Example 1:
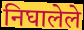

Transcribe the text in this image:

निघालेले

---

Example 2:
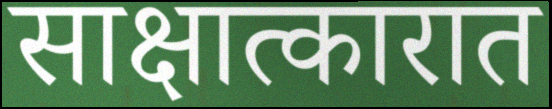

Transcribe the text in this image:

साक्षात्कारात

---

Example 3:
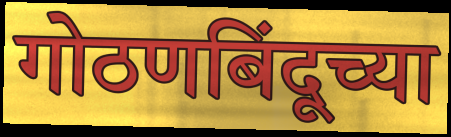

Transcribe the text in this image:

गोठणबिंदूच्या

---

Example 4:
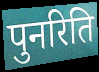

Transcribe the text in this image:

पुनरिति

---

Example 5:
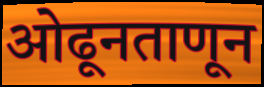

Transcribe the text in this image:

ओढूनताणून